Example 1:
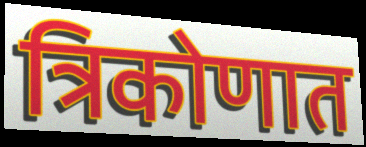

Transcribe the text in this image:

त्रिकोणात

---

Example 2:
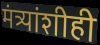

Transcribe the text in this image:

मंत्र्यांशीही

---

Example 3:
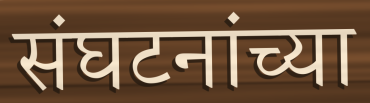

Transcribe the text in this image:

संघटनांच्या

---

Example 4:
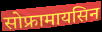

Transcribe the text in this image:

सोफ्रामायसिन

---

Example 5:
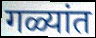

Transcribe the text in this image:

गळ्यांत